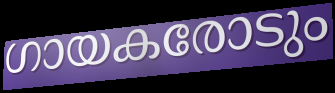
ഗായകരോടും